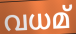
വധമ്